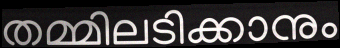
തമ്മിലടിക്കാനും